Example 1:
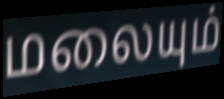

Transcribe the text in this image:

மலையும்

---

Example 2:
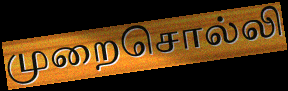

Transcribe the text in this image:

முறைசொல்லி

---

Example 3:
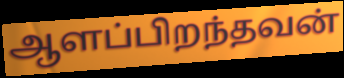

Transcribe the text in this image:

ஆளப்பிறந்தவன்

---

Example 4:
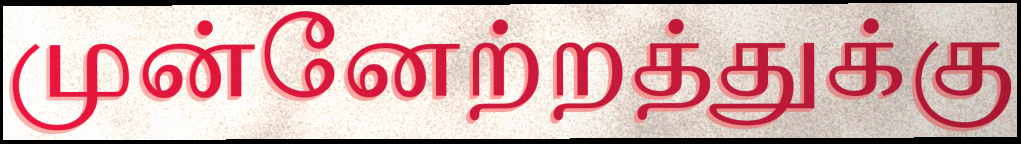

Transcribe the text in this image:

முன்னேற்றத்துக்கு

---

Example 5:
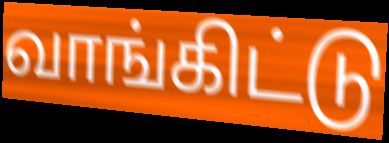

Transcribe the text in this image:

வாங்கிட்டு